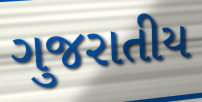
ગુજરાતીય